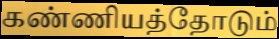
கண்ணியத்தோடும்